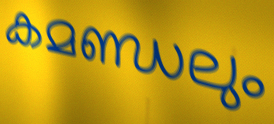
കമണ്ഡലും